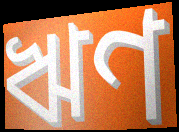
ঋণ